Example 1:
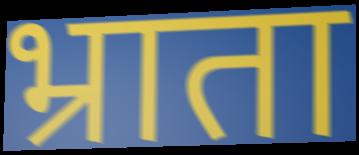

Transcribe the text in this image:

भ्राता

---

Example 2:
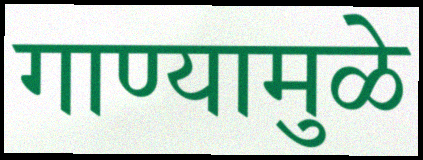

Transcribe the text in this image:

गाण्यामुळे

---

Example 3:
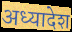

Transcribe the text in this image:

अध्यादेश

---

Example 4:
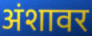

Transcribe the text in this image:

अंशावर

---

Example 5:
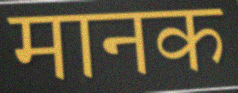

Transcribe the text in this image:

मानक